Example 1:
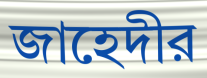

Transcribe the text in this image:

জাহেদীর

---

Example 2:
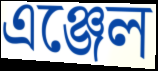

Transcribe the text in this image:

এঞ্জেল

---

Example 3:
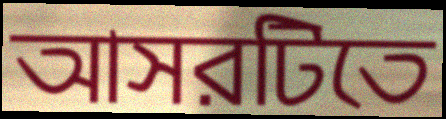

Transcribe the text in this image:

আসরটিতে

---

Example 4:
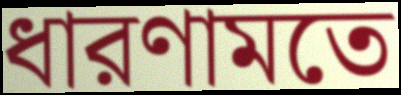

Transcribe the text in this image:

ধারণামতে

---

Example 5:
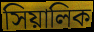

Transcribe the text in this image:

সিয়ালিক